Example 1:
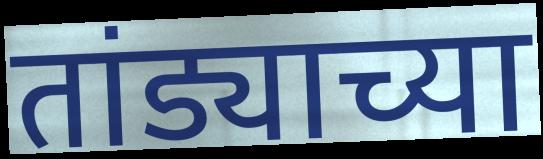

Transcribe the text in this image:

तांड्याच्या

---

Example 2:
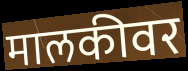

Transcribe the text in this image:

मालकीवर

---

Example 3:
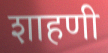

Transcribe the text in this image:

शाहणी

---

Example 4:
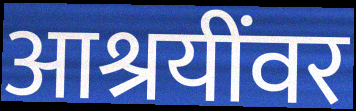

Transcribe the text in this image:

आश्रयींवर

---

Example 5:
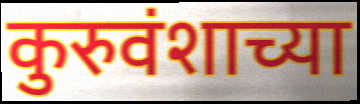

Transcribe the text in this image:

कुरुवंशाच्या